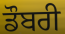
ਡੌਬਰੀ